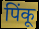
पिंकू